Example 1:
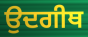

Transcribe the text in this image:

ਉਦਗੀਥ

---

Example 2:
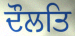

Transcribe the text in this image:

ਦੌਲਤਿ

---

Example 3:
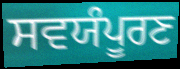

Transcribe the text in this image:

ਸਵਯੰਪੂਰਣ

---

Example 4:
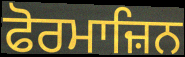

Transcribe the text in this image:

ਫੋਰਮਾਜ਼ਿਨ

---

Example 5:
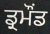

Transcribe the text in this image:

ਡ੍ਰਮੌਂਡ